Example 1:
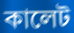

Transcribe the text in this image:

কালেট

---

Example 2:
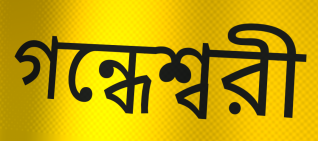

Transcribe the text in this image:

গন্ধেশ্বরী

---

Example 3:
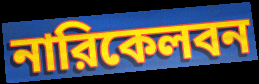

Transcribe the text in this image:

নারিকেলবন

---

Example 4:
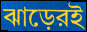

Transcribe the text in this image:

ঝাড়েরই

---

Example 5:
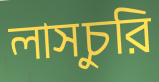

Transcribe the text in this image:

লাসচুরি